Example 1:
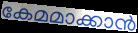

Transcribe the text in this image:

കേമമാക്കാൻ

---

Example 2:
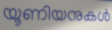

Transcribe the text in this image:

യൂണിയനുകൾ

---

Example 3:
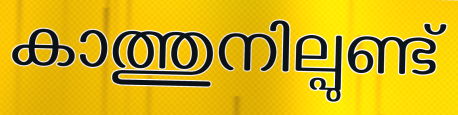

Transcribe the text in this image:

കാത്തുനില്പുണ്ട്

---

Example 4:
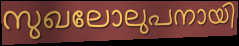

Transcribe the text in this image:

സുഖലോലുപനായി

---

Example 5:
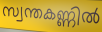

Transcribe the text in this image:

സ്വന്തകണ്ണിൽ